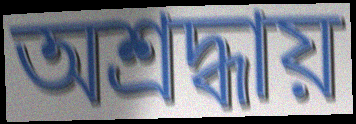
অশ্রদ্ধায়